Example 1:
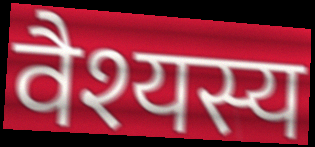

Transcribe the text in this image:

वैश्यस्य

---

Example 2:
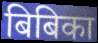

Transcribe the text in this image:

बिबिका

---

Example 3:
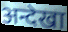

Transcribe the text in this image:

अन्देखा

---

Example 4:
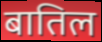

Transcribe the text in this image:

बातिल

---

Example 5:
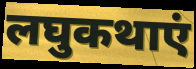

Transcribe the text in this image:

लघुकथाएं